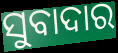
ସୁବାଦାର